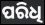
ପରିଧି